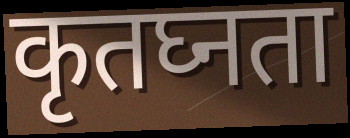
कृतघ्नता